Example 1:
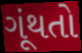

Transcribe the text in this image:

ગૂંથતો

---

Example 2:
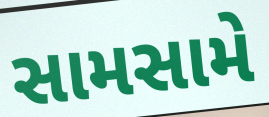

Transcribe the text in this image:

સામસામે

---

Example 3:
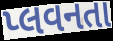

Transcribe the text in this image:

પ્લવનતા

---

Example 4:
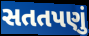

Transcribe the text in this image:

સતતપણું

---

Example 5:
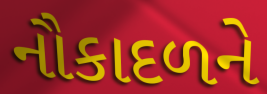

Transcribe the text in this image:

નૌકાદળને